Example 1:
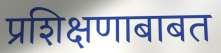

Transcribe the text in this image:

प्रशिक्षणाबाबत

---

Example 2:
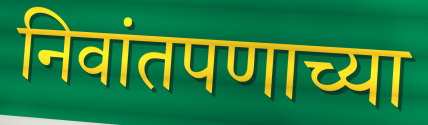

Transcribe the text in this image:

निवांतपणाच्या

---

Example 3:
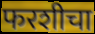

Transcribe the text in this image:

फरशीचा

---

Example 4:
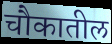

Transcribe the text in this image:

चौकातील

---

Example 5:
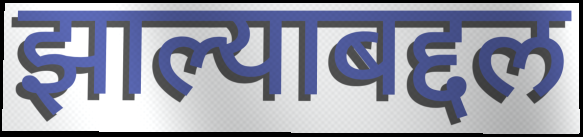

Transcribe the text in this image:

झाल्याबद्दल